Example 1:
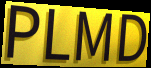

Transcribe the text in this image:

PLMD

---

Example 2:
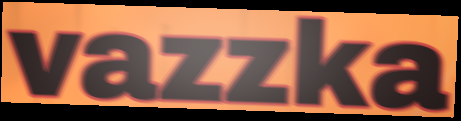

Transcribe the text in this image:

vazzka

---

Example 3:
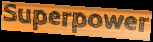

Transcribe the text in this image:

Superpower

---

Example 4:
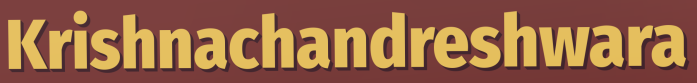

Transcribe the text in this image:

Krishnachandreshwara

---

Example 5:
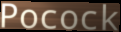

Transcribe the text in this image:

Pocock